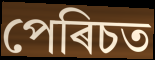
পেৰিচত